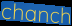
chanch